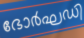
ഭോർഘഡി